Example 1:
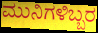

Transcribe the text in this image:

ಮುನಿಗಳಿಬ್ಬರ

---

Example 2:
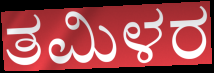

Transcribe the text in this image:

ತಮಿಳರ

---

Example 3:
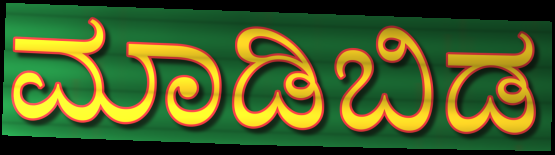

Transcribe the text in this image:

ಮಾಡಿಬಿಡ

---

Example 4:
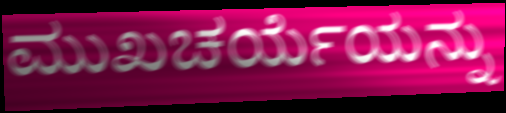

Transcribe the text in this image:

ಮುಖಚರ್ಯೆಯನ್ನು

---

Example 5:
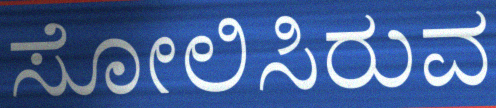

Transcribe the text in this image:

ಸೋಲಿಸಿರುವ